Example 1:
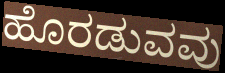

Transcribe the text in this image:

ಹೊರಡುವವು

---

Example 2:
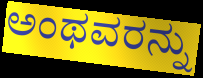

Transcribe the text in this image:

ಅಂಥವರನ್ನು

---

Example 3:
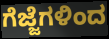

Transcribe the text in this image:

ಗೆಜ್ಜೆಗಳಿಂದ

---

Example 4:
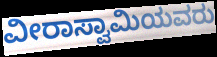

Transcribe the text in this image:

ವೀರಾಸ್ವಾಮಿಯವರು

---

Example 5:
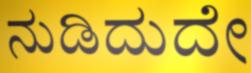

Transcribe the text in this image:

ನುಡಿದುದೇ